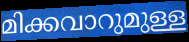
മിക്കവാറുമുള്ള